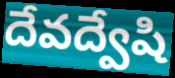
దేవద్వేషి